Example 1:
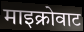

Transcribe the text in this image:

माइक्रोवाट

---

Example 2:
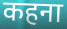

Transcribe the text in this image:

कहना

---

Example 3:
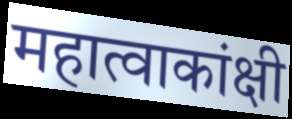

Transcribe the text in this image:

महात्वाकांक्षी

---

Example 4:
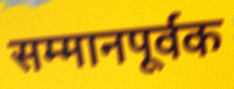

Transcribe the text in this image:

सम्मानपूर्वक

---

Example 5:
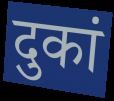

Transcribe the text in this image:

दुकां